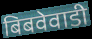
बिबवेवाडी